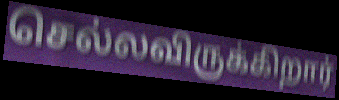
செல்லவிருக்கிறார்